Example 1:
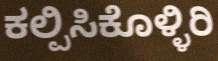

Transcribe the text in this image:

ಕಲ್ಪಿಸಿಕೊಳ್ಳಿರಿ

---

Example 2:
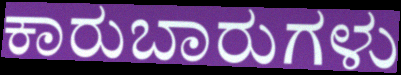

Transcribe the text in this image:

ಕಾರುಬಾರುಗಳು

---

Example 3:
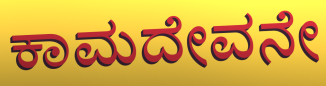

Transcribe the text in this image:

ಕಾಮದೇವನೇ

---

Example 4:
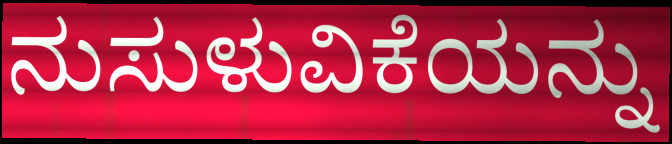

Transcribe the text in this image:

ನುಸುಳುವಿಕೆಯನ್ನು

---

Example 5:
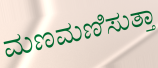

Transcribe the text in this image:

ಮಣಮಣಿಸುತ್ತಾ